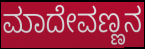
ಮಾದೇವಣ್ಣನ